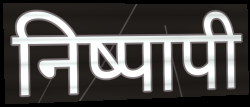
निष्पापी